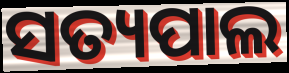
ସତ୍ୟପାଲ